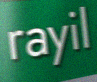
rayil